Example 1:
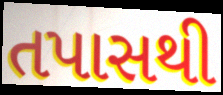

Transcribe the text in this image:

તપાસથી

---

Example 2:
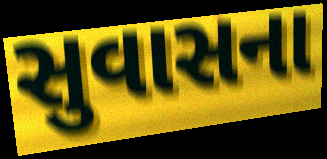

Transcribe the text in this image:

સુવાસના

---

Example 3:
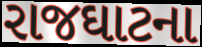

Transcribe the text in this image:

રાજઘાટના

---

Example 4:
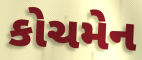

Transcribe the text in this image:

કોચમેન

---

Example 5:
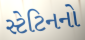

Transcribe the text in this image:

સ્ટેટિનનો